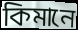
কিমানে